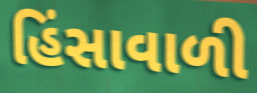
હિંસાવાળી